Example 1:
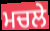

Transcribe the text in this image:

ਮਚਲੇ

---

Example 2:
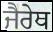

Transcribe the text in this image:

ਜੈਰੇਥ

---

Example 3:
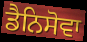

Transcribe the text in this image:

ਡੈਨਿਸੋਵਾ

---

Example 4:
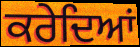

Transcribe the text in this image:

ਕਰੇਦਿਆਂ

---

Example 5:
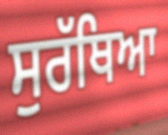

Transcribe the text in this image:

ਸੁਰੱਥਿਆ